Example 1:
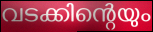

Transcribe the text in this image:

വടക്കിന്റെയും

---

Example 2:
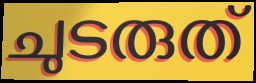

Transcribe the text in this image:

ചുടരുത്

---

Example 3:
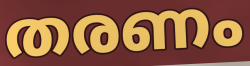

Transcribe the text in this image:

തരണം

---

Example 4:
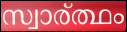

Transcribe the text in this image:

സ്വാര്ത്ഥം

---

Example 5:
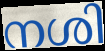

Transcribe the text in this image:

നശി